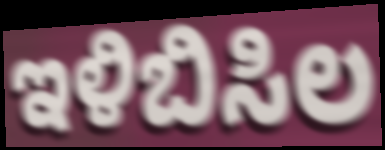
ಇಳಿಬಿಸಿಲ